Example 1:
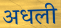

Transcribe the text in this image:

अधली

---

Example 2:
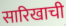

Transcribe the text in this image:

सारिखाची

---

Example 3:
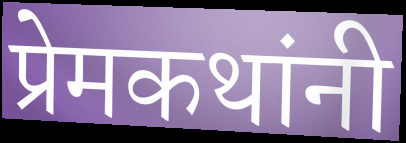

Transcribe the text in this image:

प्रेमकथांनी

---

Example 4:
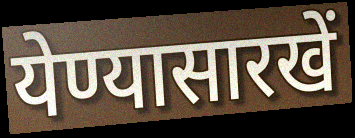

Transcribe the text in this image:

येण्यासारखें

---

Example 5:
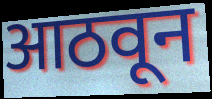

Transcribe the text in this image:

आठवून